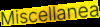
Miscellanea